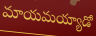
మాయమయ్యాడో